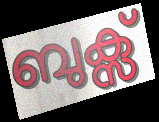
ബുക്സ്